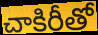
చాకిరీతో